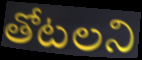
తోటలని